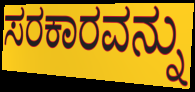
ಸರಕಾರವನ್ನು